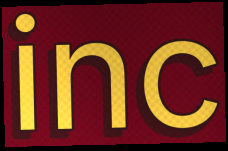
inc